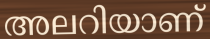
അലറിയാണ്